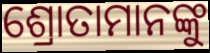
ଶ୍ରୋତାମାନଙ୍କୁ